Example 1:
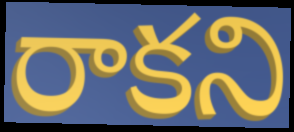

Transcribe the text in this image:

రాకని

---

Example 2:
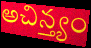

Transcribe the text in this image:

అచిన్త్యం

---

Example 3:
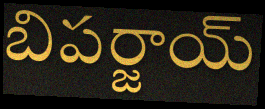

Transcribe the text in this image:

బిపర్జాయ్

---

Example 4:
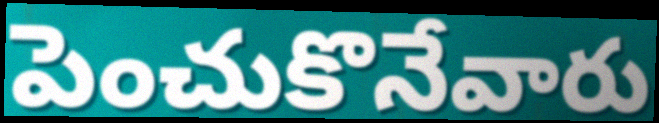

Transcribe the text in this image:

పెంచుకొనేవారు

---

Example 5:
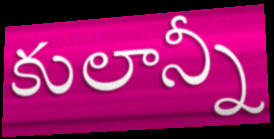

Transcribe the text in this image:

కులాన్నీ